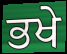
ਭਖੇ